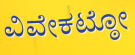
ವಿವೇಕಟ್ಠೋ